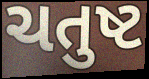
ચતુષ્ટ